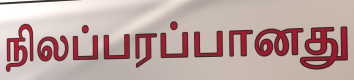
நிலப்பரப்பானது